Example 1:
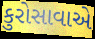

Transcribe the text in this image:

કુરોસાવાએ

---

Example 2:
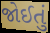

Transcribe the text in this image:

જોઈતું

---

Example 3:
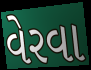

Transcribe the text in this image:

વેરવા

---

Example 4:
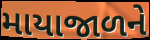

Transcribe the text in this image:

માયાજાળને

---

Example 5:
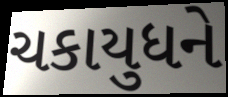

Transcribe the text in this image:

ચકાયુધને